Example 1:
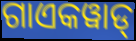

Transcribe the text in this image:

ଗାଏକୱାଡ୍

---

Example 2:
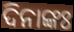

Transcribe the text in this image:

ଦିନାଙ୍କଃ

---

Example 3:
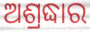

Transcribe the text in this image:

ଅଶ୍ରଦ୍ଧାର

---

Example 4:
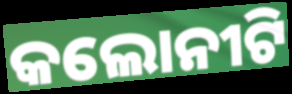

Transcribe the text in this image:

କଲୋନୀଟି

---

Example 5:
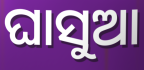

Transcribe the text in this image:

ଘାସୁଆ